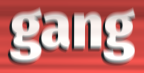
gang